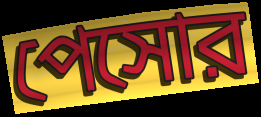
পেসোর